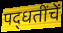
पद्धतींचें